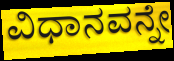
ವಿಧಾನವನ್ನೇ